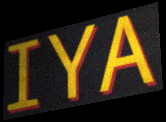
IYA